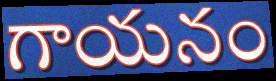
గాయనం